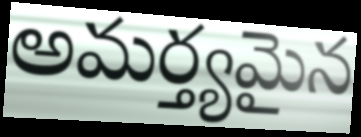
అమర్త్యమైన